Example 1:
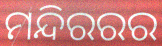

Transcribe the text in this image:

ମନ୍ଦିରରର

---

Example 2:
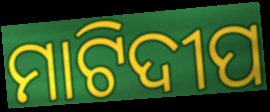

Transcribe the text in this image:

ମାଟିଦୀପ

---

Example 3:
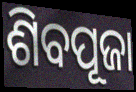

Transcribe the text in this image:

ଶିବପୂଜା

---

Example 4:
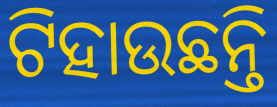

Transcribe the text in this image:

ଟିହାଉଛନ୍ତି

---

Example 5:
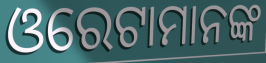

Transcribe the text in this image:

ଓରେଟାମାନଙ୍କ